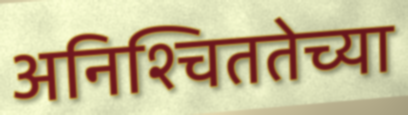
अनिश्चिततेच्या